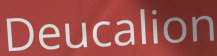
Deucalion